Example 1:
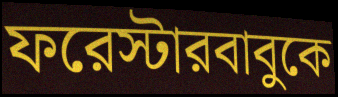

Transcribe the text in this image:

ফরেস্টারবাবুকে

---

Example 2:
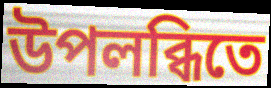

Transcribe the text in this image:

উপলব্ধিতে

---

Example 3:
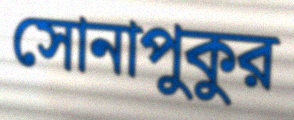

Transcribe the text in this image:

সোনাপুকুর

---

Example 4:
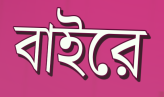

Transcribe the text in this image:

বাইরে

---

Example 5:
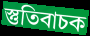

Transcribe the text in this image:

স্তুতিবাচক